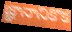
జ్ఞానానికొక